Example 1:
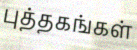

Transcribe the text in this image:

புத்தகங்கள்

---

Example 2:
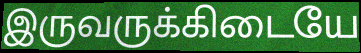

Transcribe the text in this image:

இருவருக்கிடையே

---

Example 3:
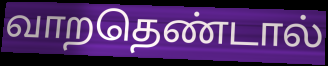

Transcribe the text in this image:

வாறதெண்டால்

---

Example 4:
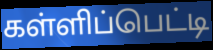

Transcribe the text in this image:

கள்ளிப்பெட்டி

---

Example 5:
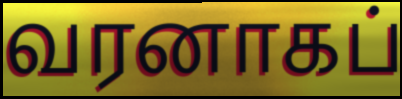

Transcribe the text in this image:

வரனாகப்